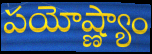
పయోష్ణ్యాం